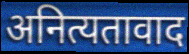
अनित्यतावाद